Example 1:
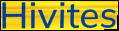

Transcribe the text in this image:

Hivites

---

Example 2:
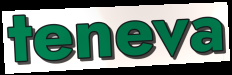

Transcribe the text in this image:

teneva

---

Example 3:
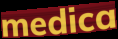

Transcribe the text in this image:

medica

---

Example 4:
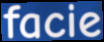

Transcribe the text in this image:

facie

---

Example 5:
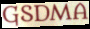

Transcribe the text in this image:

GSDMA